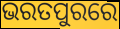
ଭରତପୁରରେ